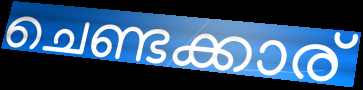
ചെണ്ടക്കാര്